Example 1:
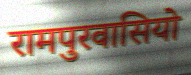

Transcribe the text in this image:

रामपुरवासियो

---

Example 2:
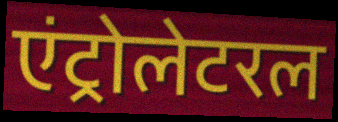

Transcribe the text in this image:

एंट्रोलेटरल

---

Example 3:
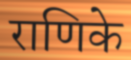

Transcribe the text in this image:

राणिके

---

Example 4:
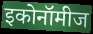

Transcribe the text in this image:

इकोनॉमीज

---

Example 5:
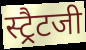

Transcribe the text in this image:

स्ट्रैटजी